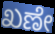
ಖಣೇ